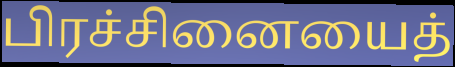
பிரச்சினையைத்